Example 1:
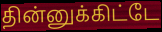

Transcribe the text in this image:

தின்னுக்கிட்டே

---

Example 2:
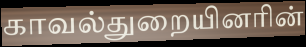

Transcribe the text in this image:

காவல்துறையினரின்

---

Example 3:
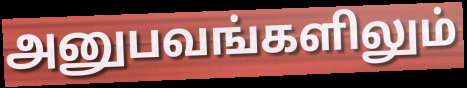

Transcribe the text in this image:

அனுபவங்களிலும்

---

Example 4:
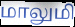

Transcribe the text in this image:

மாலுமி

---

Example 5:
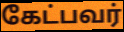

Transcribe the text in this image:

கேட்பவர்